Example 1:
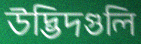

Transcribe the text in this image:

উদ্ভিদগুলি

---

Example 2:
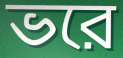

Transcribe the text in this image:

ভরে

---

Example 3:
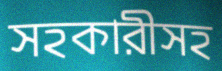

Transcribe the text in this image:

সহকারীসহ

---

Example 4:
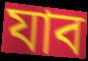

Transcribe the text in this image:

যাব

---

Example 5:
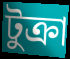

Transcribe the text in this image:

টুক্রা